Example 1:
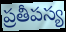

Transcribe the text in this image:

ప్రతీపస్య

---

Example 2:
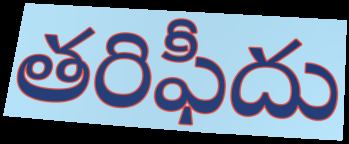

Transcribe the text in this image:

తరిఫీదు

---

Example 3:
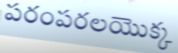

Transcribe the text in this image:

పరంపరలయొక్క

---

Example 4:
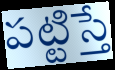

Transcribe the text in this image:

పట్టిస్తే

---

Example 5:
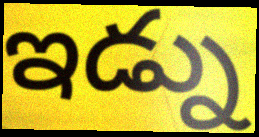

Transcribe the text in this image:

ఇడ్ను